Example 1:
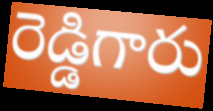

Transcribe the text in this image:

రెడ్డిగారు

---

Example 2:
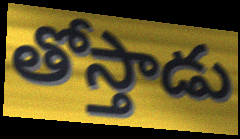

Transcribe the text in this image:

తోస్తాడు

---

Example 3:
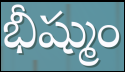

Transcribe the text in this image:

భీష్ముం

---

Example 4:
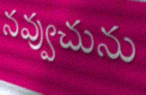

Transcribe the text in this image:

నవ్వుచును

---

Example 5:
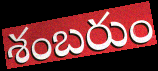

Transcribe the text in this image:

శంబరుం